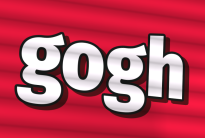
gogh